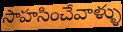
సాహసించేవాళ్ళు